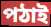
পঠাই